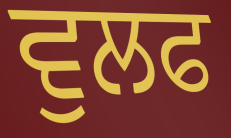
ਵੁਲਫ